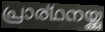
പ്രാര്ഥനയ്ക്കു